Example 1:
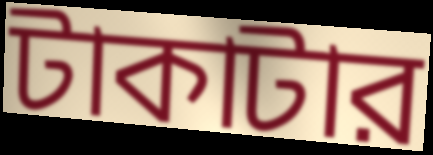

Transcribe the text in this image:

টাকাটার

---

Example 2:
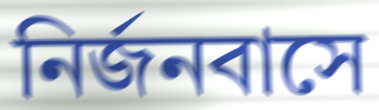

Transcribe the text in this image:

নির্জনবাসে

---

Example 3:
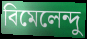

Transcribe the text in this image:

বিমেলেন্দু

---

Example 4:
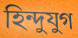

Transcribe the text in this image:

হিন্দুযুগ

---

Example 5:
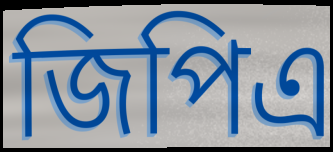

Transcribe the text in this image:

জিপিএ